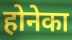
होनेका